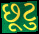
છૂટુ